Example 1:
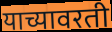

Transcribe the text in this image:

याच्यावरती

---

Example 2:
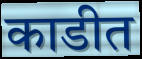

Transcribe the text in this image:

काडीत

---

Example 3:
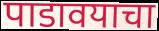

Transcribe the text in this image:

पाडावयाचा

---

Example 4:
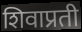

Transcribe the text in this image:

शिवाप्रती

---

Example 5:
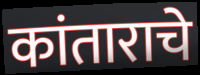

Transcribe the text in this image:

कांताराचे